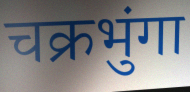
चक्रभुंगा